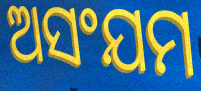
ଅସଂଯମ